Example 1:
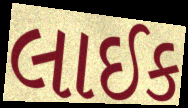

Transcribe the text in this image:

લાઈક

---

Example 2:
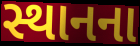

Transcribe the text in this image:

સ્થાનના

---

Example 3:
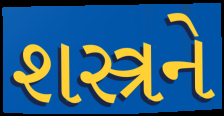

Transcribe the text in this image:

શસ્ત્રને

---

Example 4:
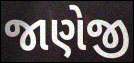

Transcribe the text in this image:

જાણેજી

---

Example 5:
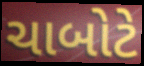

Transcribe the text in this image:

ચાબોટે